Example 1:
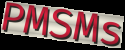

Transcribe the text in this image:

PMSMs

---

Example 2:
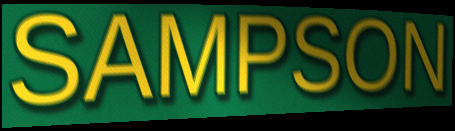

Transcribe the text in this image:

SAMPSON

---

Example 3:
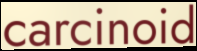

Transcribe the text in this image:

carcinoid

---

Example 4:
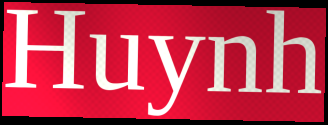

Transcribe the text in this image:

Huynh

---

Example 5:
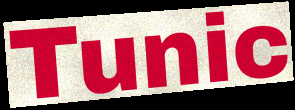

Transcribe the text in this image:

Tunic